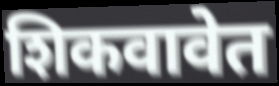
शिकवावेत